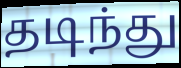
தடிந்து